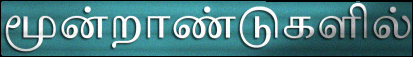
மூன்றாண்டுகளில்